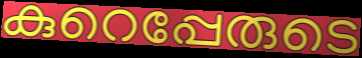
കുറെപ്പേരുടെ